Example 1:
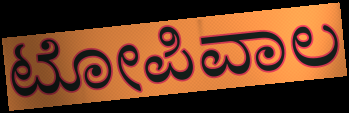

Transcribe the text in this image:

ಟೋಪಿವಾಲ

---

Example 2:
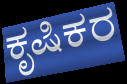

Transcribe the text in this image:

ಕೃಷಿಕರ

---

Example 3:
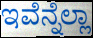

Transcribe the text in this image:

ಇವೆನ್ನೆಲ್ಲಾ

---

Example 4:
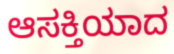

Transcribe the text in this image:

ಆಸಕ್ತಿಯಾದ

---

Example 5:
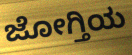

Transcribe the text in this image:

ಜೋಗ್ತಿಯ